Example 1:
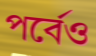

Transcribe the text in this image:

পর্বেও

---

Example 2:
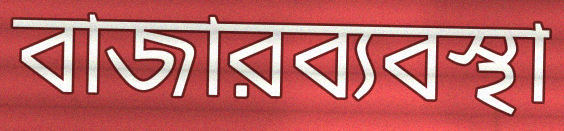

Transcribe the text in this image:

বাজারব্যবস্থা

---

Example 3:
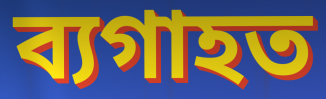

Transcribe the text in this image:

ব্যগাহত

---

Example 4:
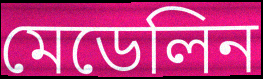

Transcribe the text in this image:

মেডেলিন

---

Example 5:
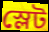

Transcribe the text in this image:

স্লেট